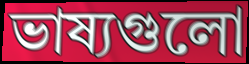
ভাষ্যগুলো